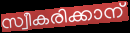
സ്വീകരിക്കാന്